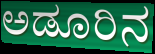
ಅಡೂರಿನ